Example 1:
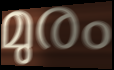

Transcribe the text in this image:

മുരം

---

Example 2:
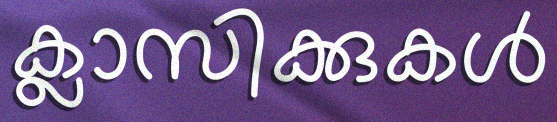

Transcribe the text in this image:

ക്ലാസിക്കുകൾ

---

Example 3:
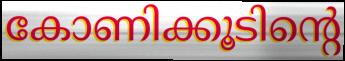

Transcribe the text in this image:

കോണിക്കൂടിന്റെ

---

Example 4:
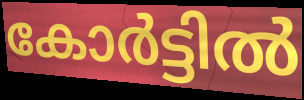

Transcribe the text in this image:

കോർട്ടിൽ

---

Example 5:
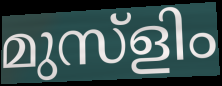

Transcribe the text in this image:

മുസ്ളിം